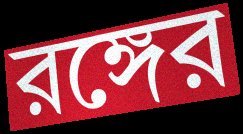
রঙ্গের